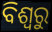
ବିଶ୍ଵରୁ